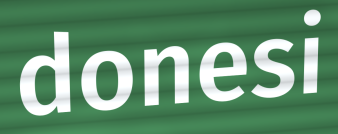
donesi